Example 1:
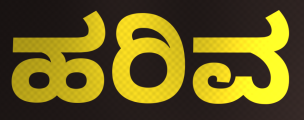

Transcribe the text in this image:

ಹರಿವ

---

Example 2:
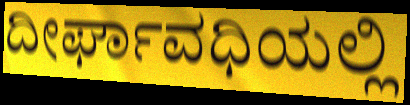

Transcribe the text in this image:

ದೀರ್ಘಾವಧಿಯಲ್ಲಿ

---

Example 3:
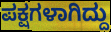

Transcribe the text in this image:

ಪಕ್ಷಗಳಾಗಿದ್ದು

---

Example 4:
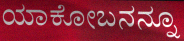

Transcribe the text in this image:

ಯಾಕೋಬನನ್ನೂ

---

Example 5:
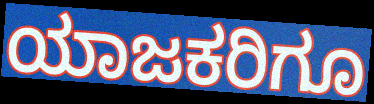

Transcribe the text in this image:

ಯಾಜಕರಿಗೂ